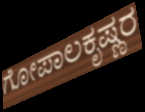
ಗೋಪಾಲಕೃಷ್ಣರ